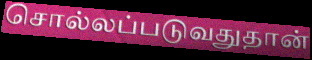
சொல்லப்படுவதுதான்